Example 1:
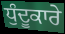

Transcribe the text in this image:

ਧੁੰਦੂਕਾਰੇ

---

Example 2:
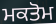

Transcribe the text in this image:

ਮਕਤੋਮ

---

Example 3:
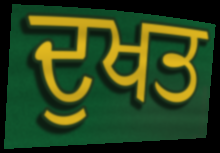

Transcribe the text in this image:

ਦੁਖਤ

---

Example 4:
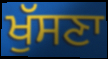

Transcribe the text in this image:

ਖੁੱਸਣਾ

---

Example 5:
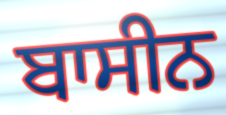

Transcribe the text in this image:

ਬਾਸੀਨ